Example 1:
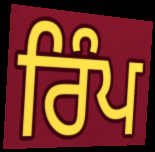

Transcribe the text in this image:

ਰਿੰਪ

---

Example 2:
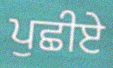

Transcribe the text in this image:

ਪੁਛੀਏ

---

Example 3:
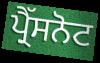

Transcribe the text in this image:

ਪ੍ਰੈੱਸਨੋਟ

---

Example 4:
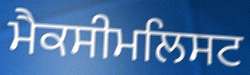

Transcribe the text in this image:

ਮੈਕਸੀਮਲਿਸਟ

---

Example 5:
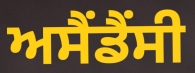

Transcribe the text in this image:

ਅਸੈਂਡੈਂਸੀ